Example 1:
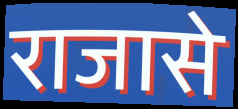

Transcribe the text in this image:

राजासे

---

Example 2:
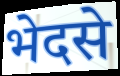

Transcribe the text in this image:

भेदसे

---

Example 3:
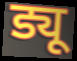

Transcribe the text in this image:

ड्यू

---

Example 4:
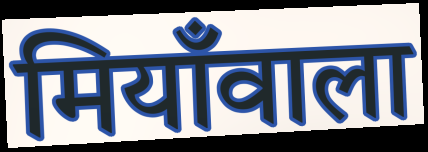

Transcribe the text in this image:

मियाँवाला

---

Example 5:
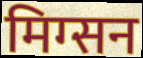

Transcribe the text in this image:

मिग्सन